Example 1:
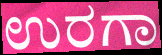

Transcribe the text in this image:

ಉರಗಾ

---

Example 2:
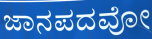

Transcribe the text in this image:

ಜಾನಪದವೋ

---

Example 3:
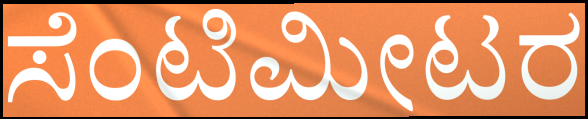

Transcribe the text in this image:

ಸೆಂಟಿಮೀಟರ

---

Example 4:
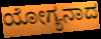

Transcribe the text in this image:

ಯೋಗ್ಯನಾದ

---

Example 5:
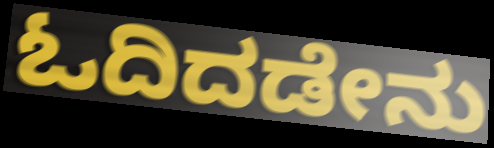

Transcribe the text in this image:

ಓದಿದಡೇನು